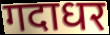
गदाधर